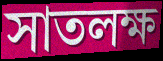
সাতলক্ষ